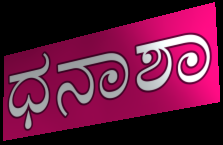
ಧನಾಶಾ